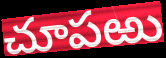
చూపఱు